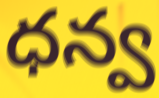
ధన్వ